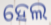
ହେଲ